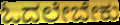
ಓದಲೇಬೇಕು